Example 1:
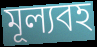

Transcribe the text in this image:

মূল্যবহ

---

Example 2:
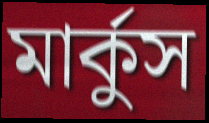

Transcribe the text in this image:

মার্কুস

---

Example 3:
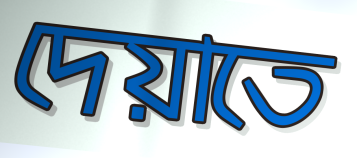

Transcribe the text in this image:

দেয়াতে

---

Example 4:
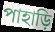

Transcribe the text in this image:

পাহাড়ি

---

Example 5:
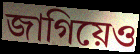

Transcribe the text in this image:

জাগিয়েও